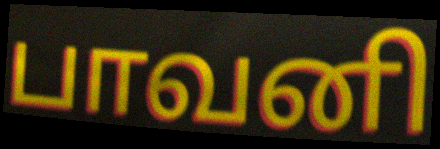
பாவனி